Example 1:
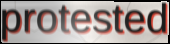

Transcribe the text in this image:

protested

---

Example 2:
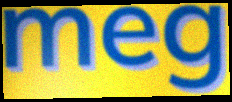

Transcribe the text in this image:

meg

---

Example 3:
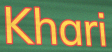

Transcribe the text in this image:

Khari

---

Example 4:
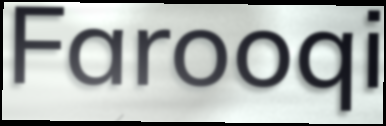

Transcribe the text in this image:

Farooqi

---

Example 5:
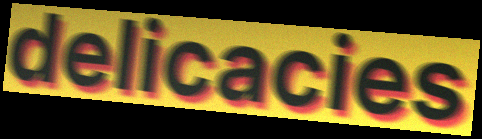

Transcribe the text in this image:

delicacies